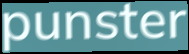
punster